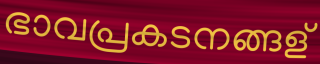
ഭാവപ്രകടനങ്ങള്